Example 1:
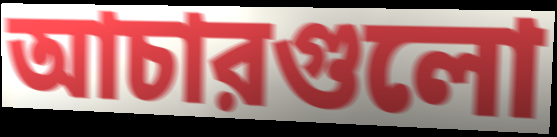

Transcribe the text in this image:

আচারগুলো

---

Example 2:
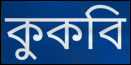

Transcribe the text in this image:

কুকবি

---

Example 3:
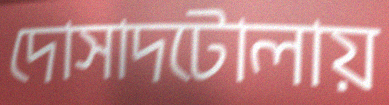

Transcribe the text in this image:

দোসাদটোলায়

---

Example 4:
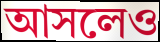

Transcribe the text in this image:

আসলেও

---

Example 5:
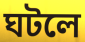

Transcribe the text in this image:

ঘটলে